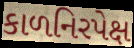
કાળનિરપેક્ષ